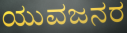
ಯುವಜನರ